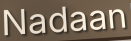
Nadaan